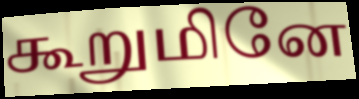
கூறுமினே